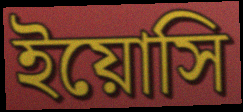
ইয়োসি